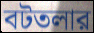
বটতলার